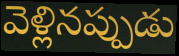
వెళ్లినప్పుడు